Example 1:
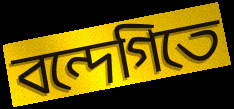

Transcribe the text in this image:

বন্দেগিতে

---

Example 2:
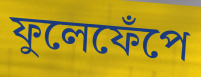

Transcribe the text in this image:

ফুলেফেঁপে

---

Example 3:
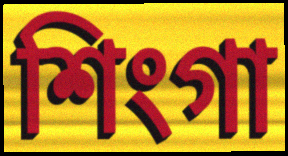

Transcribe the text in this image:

শিংগা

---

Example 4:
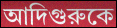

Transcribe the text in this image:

আদিগুরুকে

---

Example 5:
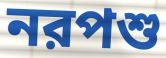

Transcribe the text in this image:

নরপশু